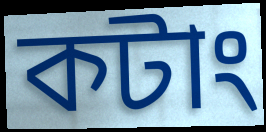
কটাং